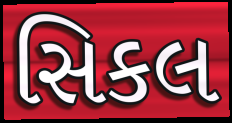
સિકલ